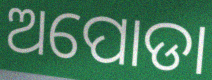
ଅପୋଡା